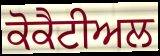
ਕੋਕੈਟੀਅਲ